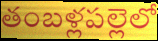
తంబళ్లపల్లెలో